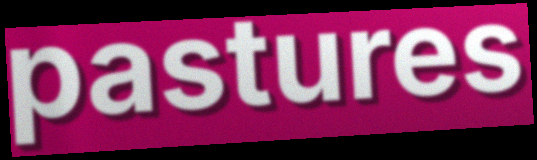
pastures